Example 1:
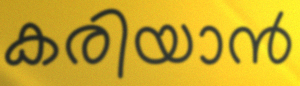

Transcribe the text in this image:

കരിയാൻ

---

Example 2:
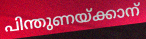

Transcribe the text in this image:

പിന്തുണയ്ക്കാന്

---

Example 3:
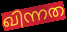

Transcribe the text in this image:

ഖിന്നത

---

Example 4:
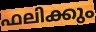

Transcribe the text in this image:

ഫലിക്കും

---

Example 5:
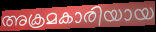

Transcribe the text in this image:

അക്രമകാരിയായ